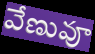
వేణువూ